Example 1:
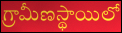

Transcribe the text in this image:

గ్రామీణస్థాయిలో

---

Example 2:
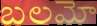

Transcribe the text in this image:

బలమో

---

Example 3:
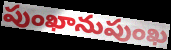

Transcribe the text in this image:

పుంఖానుపుంఖ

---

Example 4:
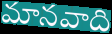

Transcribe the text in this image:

మానవాది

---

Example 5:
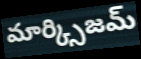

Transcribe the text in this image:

మార్క్సిజమ్